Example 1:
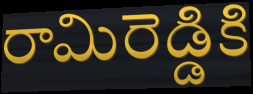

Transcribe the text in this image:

రామిరెడ్డికి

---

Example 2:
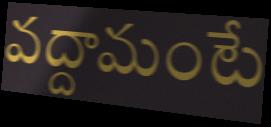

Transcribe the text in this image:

వద్దామంటే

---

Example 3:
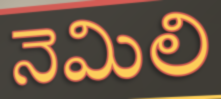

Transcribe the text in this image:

నెమిలి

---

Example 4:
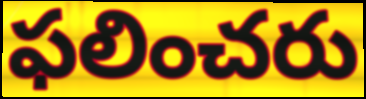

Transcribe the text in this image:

ఫలించరు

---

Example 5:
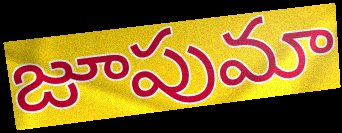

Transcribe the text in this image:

జూపుమా